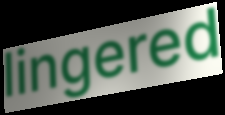
lingered